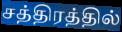
சத்திரத்தில்